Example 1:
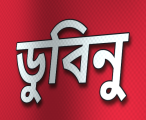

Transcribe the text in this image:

ডুবিনু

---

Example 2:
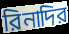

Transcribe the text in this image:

রিনাদির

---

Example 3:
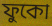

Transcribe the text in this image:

ফুকো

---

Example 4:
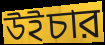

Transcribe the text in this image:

উইচার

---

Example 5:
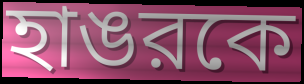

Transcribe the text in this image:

হাঙরকে